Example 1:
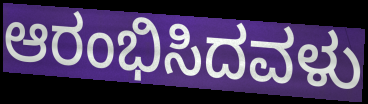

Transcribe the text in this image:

ಆರಂಭಿಸಿದವಳು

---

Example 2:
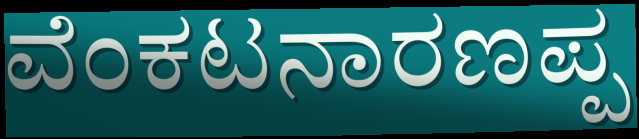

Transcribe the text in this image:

ವೆಂಕಟನಾರಣಪ್ಪ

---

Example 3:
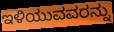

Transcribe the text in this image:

ಇಳಿಯುವವರನ್ನು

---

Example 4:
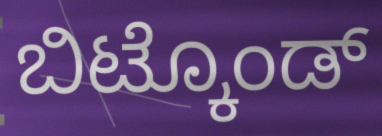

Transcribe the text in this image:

ಬಿಟ್ಕೊಂಡ್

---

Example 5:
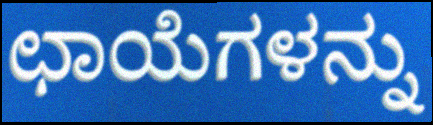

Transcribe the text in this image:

ಛಾಯೆಗಳನ್ನು